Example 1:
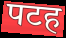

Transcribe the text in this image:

पटह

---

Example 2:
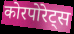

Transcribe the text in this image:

कोरपोरेट्स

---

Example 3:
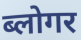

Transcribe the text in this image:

ब्लोगर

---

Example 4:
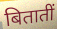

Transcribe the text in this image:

बितातीं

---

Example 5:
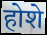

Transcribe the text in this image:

होशे